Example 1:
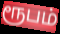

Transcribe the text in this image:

ரூபம்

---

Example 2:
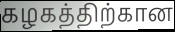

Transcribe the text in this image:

கழகத்திற்கான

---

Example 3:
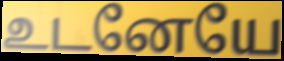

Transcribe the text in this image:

உடனேயே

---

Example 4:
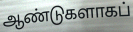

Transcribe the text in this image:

ஆண்டுகளாகப்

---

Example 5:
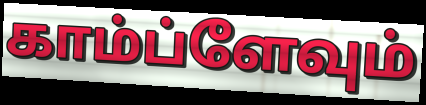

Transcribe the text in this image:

காம்ப்ளேவும்